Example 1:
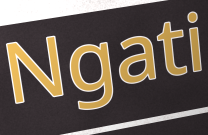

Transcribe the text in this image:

Ngati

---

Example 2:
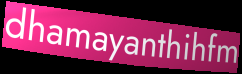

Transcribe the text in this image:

dhamayanthihfm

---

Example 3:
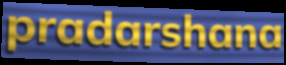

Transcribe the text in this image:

pradarshana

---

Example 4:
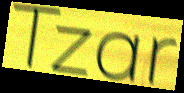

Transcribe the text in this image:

Tzar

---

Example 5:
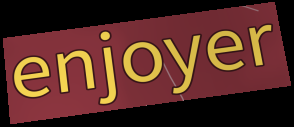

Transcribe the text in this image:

enjoyer